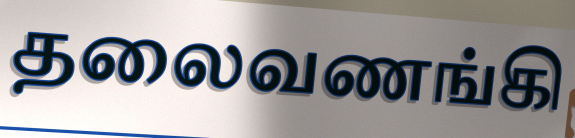
தலைவணங்கி